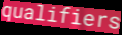
qualifiers